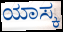
ಯಾಸ್ಕ